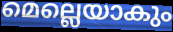
മെല്ലെയാകും